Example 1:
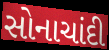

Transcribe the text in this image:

સોનાચાંદી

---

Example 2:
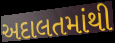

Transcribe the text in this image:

અદાલતમાંથી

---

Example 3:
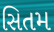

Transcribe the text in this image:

સિતમ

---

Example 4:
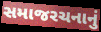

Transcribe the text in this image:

સમાજરચનાનું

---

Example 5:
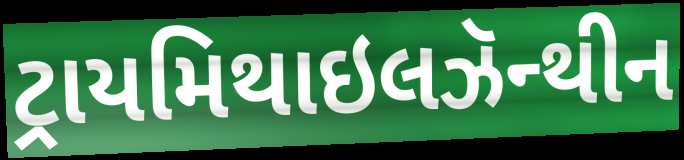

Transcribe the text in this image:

ટ્રાયમિથાઇલઝૅન્થીન